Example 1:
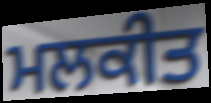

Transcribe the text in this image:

ਮਲਕੀਤ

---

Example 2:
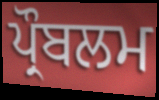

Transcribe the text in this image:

ਪ੍ਰੌਬਲਮ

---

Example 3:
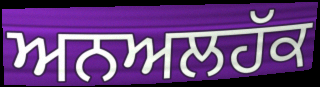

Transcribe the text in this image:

ਅਨਅਲਹੱਕ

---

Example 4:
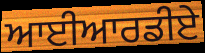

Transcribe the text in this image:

ਆਈਆਰਡੀਏ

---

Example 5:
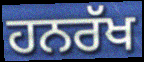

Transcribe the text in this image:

ਹਨਰੱਖ